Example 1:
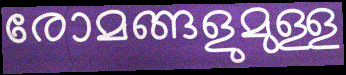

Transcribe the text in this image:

രോമങ്ങളുമുള്ള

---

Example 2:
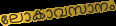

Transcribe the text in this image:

ലോകാവസാനം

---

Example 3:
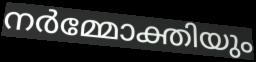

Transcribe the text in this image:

നർമ്മോക്തിയും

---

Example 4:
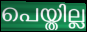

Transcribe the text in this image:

പെയ്തില്ല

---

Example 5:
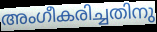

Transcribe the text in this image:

അംഗീകരിച്ചതിനു